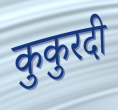
कुकुरदी